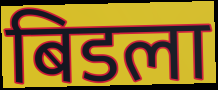
बिडला